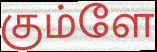
கும்ளே